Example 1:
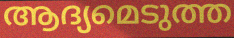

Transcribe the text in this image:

ആദ്യമെടുത്ത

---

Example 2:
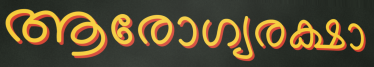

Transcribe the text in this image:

ആരോഗ്യരക്ഷാ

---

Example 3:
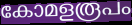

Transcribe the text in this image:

കോമളരൂപം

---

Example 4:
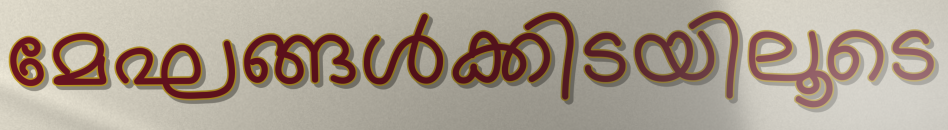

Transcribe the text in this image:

മേഘങ്ങൾക്കിടയിലൂടെ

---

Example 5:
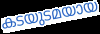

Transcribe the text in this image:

കടയുടമയായ